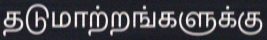
தடுமாற்றங்களுக்கு